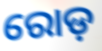
ରୋଡ଼